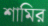
শামির